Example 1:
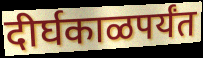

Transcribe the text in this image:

दीर्घकाळपर्यंत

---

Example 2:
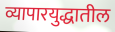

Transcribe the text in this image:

व्यापारयुद्धातील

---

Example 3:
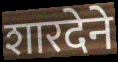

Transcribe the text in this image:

शारदेने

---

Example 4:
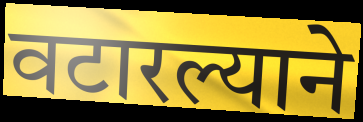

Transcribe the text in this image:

वटारल्याने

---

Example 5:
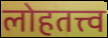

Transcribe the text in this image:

लोहतत्त्व